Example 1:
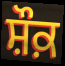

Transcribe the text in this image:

ਸ਼ੌਕ਼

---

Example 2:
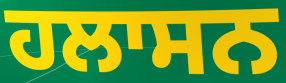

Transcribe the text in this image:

ਹਲਾਸਨ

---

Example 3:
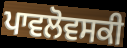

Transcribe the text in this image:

ਪਾਵਲੋਵਸਕੀ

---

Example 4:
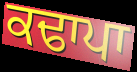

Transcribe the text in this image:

ਕਢਾਪਾ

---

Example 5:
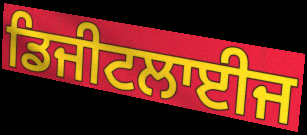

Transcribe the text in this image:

ਡਿਜੀਟਲਾਈਜ